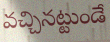
వచ్చినట్టుండే